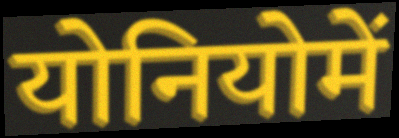
योनियोमें